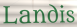
Landis